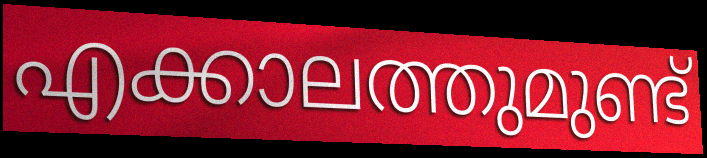
എക്കാലത്തുമുണ്ട്